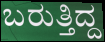
ಬರುತ್ತಿದ್ದ